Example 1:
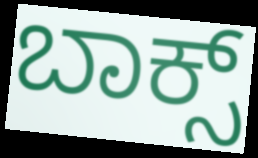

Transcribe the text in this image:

ಬಾಕ್ಸ್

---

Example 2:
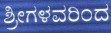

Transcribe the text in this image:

ಶ್ರೀಗಳವರಿಂದ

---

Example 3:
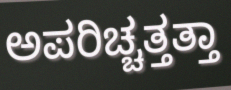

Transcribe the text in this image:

ಅಪರಿಚ್ಚತ್ತತ್ತಾ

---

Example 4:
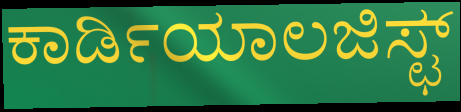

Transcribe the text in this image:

ಕಾರ್ಡಿಯಾಲಜಿಸ್ಟ್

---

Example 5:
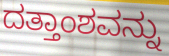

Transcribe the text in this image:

ದತ್ತಾಂಶವನ್ನು